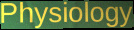
Physiology